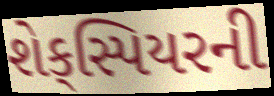
શેક્‌સ્પિયરની